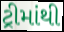
ટ્રીમાંથી